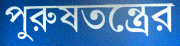
পুরুষতন্ত্রের